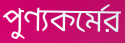
পুণ্যকর্মের